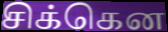
சிக்கென